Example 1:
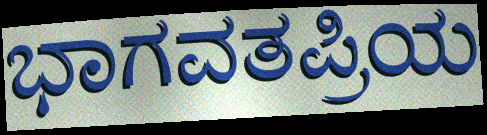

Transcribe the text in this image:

ಭಾಗವತಪ್ರಿಯ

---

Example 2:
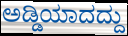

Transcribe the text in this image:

ಅಡ್ಡಿಯಾದದ್ದು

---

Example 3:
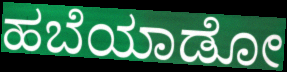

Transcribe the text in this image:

ಹಬೆಯಾಡೋ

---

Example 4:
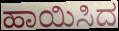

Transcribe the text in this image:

ಹಾಯಿಸಿದ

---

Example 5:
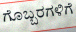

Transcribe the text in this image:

ಗೊಬ್ಬರಗಳಿಗೆ